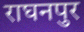
राघनपुर